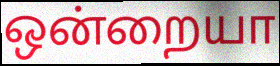
ஒன்றையா